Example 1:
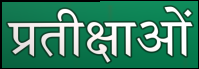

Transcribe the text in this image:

प्रतीक्षाओं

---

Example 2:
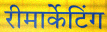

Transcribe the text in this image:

रीमार्केटिंग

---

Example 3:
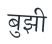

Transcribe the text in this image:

बुझी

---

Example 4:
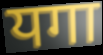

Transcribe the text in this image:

यगा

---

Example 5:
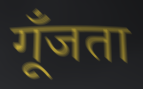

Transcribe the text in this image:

गूँजता